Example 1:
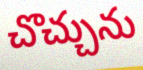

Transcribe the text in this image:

చొచ్చును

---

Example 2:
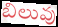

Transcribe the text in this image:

బిలువు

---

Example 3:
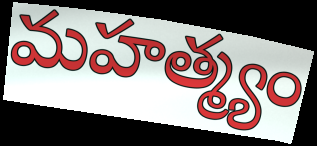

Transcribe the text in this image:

మహత్మ్యం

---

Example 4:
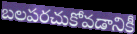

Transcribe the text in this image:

బలపరచుకోవడానికీ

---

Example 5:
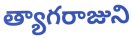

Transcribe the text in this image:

త్యాగరాజుని